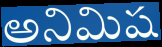
అనిమిష